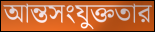
আন্তসংযুক্ততার